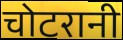
चोटरानी